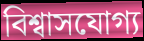
বিশ্বাসযোগ্য